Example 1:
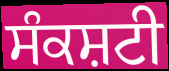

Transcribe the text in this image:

ਸੰਕਸ਼ਟੀ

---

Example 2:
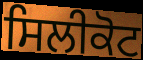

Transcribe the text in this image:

ਸਿਲੀਕੋਟ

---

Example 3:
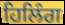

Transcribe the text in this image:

ਹਿਲਿੰਗ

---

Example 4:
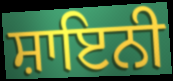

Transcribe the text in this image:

ਸ਼ਾਇਨੀ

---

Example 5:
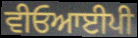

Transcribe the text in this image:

ਵੀਓਆਈਪੀ